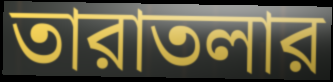
তারাতলার